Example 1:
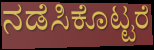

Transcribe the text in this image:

ನಡೆಸಿಕೊಟ್ಟರೆ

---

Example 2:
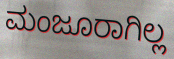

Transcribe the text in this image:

ಮಂಜೂರಾಗಿಲ್ಲ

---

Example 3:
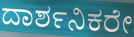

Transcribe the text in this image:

ದಾರ್ಶನಿಕರೇ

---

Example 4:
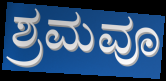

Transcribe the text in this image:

ಶ್ರಮವೂ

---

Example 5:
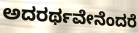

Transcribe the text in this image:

ಅದರರ್ಥವೇನೆಂದರೆ